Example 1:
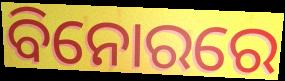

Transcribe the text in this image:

ବିନୋରରେ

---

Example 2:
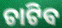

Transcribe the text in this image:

ଚାଟିବ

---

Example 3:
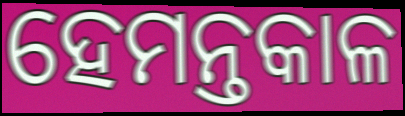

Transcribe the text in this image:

ହେମନ୍ତକାଳ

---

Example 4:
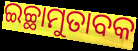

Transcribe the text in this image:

ଇଚ୍ଛାମୁତାବକ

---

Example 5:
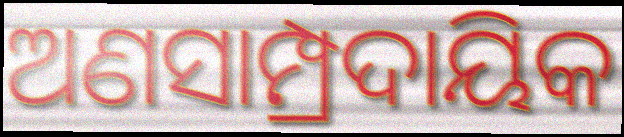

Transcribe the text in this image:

ଅଣସାମ୍ପ୍ରଦାୟିକ